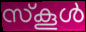
സ്കൂൾ